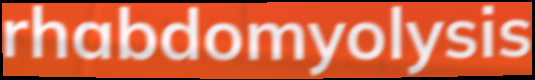
rhabdomyolysis